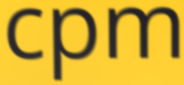
cpm